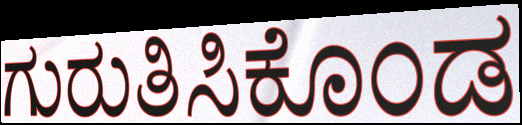
ಗುರುತಿಸಿಕೊಂಡ